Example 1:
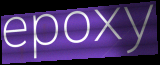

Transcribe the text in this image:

epoxy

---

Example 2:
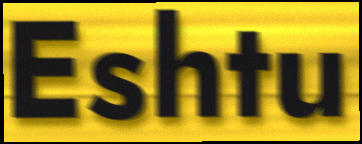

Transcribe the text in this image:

Eshtu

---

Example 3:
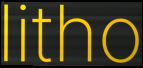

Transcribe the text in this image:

litho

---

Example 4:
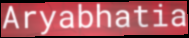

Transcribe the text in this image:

Aryabhatia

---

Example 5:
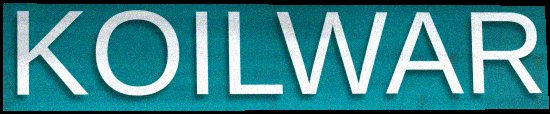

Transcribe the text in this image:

KOILWAR